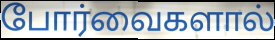
போர்வைகளால்